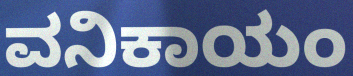
ವನಿಕಾಯಂ